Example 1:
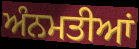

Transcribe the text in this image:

ਅੰਨਮਤੀਆਂ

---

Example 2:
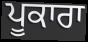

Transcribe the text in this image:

ਪੂਕਾਰਾ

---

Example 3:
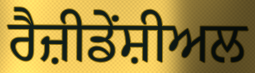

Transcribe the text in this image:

ਰੈਜ਼ੀਡੇਂਸ਼ੀਅਲ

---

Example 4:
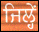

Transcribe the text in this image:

ਜਿਲ੍ਹੇਂ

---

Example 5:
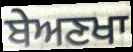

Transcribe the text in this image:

ਬੇਅਣਖਾ